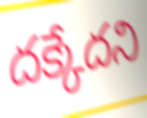
దక్కేదని